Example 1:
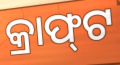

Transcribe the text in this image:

କ୍ରାଫ୍‌ଟ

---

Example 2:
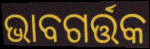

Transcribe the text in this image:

ଭାବଗର୍ତ୍ତକ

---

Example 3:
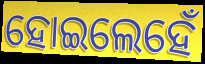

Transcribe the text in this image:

ହୋଇଲେହେଁ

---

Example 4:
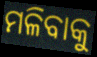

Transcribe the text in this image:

ମଳିବାକୁ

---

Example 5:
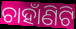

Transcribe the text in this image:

ଚାହାଁଣିଟି